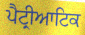
ਪੈਟ੍ਰੀਆਟਿਕ